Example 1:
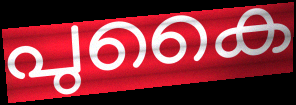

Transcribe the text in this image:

പുകൈ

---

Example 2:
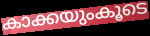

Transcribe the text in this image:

കാക്കയുംകൂടെ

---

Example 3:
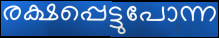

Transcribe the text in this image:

രക്ഷപ്പെട്ടുപോന്ന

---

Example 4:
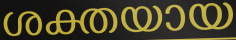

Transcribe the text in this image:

ശക്തയായ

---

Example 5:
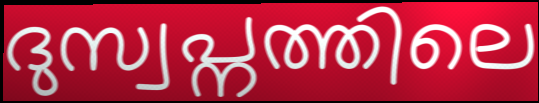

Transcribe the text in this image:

ദുസ്വപ്നത്തിലെ